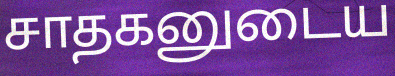
சாதகனுடைய